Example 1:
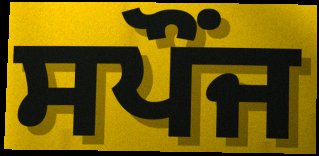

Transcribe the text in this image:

ਸਪੌਂਜ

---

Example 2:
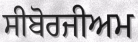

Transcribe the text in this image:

ਸੀਬੋਰਜੀਅਮ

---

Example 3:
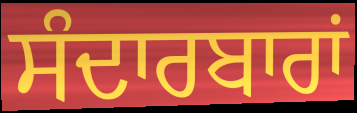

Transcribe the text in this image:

ਸੰਦਾਰਬਾਰਾਂ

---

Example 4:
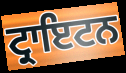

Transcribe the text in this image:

ਟ੍ਰਾਇਟਨ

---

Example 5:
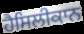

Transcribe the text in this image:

ਹੈਸਿਲੀਕਾਨ